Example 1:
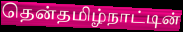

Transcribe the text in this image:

தென்தமிழ்நாட்டின்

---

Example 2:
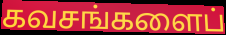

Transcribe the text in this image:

கவசங்களைப்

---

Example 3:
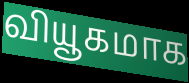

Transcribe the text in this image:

வியூகமாக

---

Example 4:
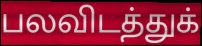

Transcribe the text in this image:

பலவிடத்துக்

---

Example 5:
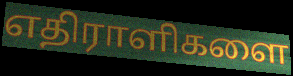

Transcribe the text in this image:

எதிராளிகளை